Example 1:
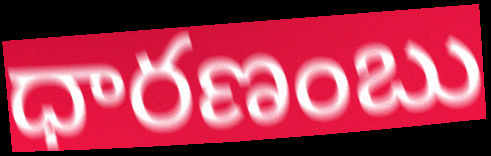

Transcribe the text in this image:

ధారణంబు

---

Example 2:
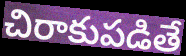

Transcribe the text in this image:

చిరాకుపడితే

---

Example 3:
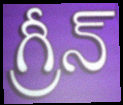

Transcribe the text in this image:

గ్రీన్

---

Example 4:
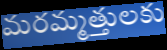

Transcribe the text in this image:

మరమ్మత్తులకు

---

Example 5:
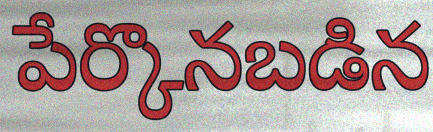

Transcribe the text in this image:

పేర్కొనబడిన